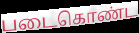
படைகொண்ட